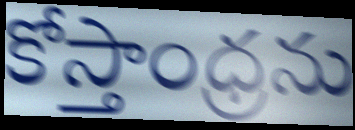
కోస్తాంధ్రను